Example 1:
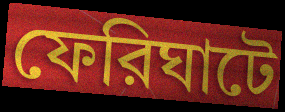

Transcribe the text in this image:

ফেরিঘাটে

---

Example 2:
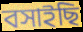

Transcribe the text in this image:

বসাইছি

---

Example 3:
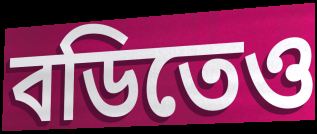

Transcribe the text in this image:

বডিতেও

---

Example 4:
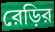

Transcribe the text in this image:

রেড়ির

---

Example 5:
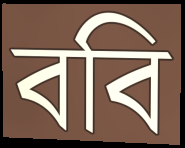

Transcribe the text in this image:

ববি